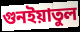
গুনইয়াতুল